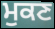
ਮੁਕਣ